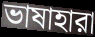
ভাষাহারা